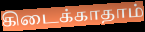
கிடைக்காதாம்